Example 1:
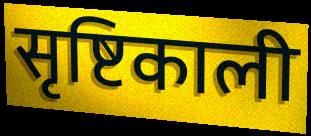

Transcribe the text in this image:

सृष्टिकाली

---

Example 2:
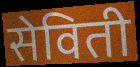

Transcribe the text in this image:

सेविती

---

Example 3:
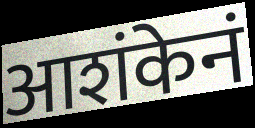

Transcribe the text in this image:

आशंकेनं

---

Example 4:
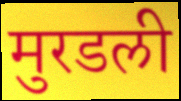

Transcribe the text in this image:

मुरडली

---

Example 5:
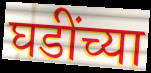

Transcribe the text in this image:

घडींच्या